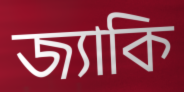
জ্যাকি